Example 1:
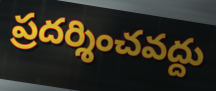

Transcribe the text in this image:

ప్రదర్శించవద్దు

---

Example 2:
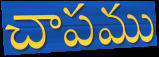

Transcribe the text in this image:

చాపము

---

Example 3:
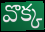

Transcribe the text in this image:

వొక్క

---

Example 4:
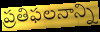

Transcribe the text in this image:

ప్రతిఫలనాన్ని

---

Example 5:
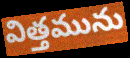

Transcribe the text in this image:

విత్తమును